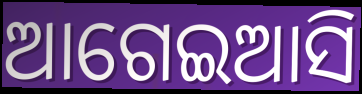
ଆଗେଇଆସି